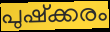
പുഷ്ക്കരം